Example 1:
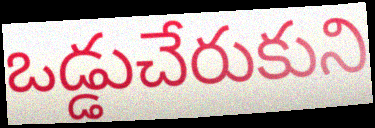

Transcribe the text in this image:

ఒడ్డుచేరుకుని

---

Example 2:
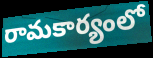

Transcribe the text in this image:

రామకార్యంలో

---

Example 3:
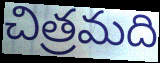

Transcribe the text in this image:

చిత్రమది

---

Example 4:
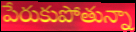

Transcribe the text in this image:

పేరుకుపోతున్నా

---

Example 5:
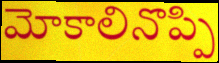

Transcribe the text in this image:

మోకాలినొప్పి